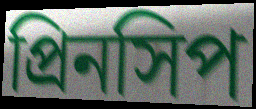
প্রিনসিপ